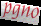
pgno